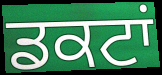
ਡਕਟਾਂ